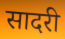
सादरी